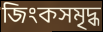
জিংকসমৃদ্ধ